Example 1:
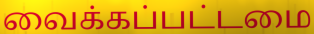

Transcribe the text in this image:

வைக்கப்பட்டமை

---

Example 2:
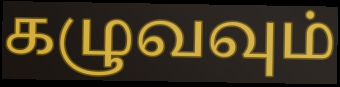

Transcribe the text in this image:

கழுவவும்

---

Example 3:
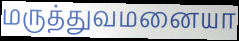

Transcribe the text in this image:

மருத்துவமனையா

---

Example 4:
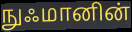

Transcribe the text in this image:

நுஃமானின்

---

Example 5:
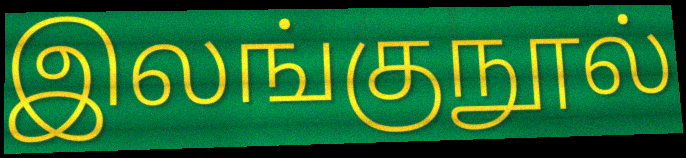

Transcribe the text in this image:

இலங்குநூல்